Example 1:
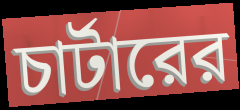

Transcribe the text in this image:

চার্টারের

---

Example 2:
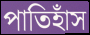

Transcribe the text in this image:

পাতিহাঁস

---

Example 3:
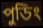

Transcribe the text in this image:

পুডিং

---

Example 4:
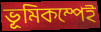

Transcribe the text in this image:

ভূমিকম্পেই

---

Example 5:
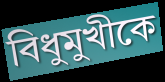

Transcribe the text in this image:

বিধুমুখীকে